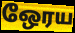
ஒேரய